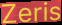
Zeris